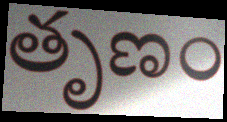
తృణం